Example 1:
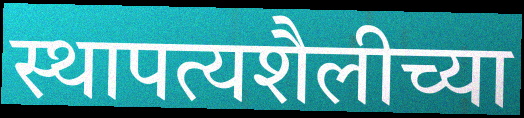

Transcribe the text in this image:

स्थापत्यशैलीच्या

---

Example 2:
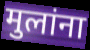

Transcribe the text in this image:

मुलांना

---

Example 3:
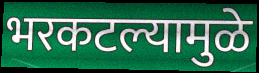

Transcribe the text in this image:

भरकटल्यामुळे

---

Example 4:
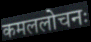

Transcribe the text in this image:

कमललोचनः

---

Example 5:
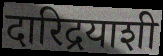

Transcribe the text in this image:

दारिद्रयाशी